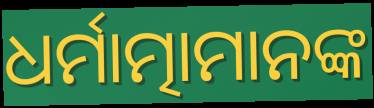
ଧର୍ମାତ୍ମାମାନଙ୍କ